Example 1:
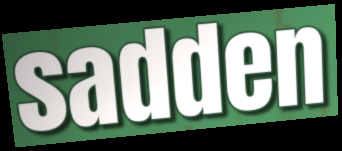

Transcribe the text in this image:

sadden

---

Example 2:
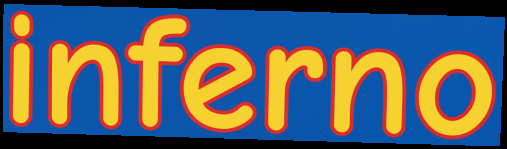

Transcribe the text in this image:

inferno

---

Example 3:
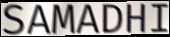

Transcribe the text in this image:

SAMADHI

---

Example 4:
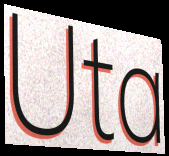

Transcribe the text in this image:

Uta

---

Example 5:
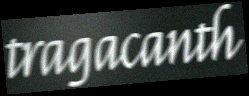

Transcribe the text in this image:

tragacanth